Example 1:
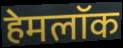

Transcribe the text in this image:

हेमलॉक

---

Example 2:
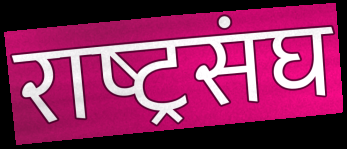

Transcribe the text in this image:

राष्ट्रसंघ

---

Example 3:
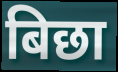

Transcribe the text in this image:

बिछा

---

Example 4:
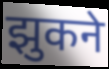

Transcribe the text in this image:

झुकने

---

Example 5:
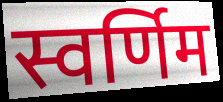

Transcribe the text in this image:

स्वर्णिम